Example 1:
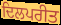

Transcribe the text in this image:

ਦਿਲਪਰੀਤ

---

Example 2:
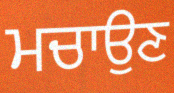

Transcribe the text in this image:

ਮਚਾਉਣ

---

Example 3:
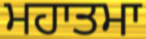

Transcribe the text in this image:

ਮਹਾਤਮਾ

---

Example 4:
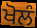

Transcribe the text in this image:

ਖੋਲੰ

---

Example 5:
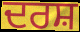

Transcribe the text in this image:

ਦਰਸ਼